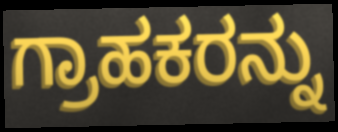
ಗ್ರಾಹಕರನ್ನು